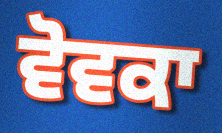
ਵੋਵਕਾ